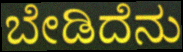
ಬೇಡಿದೆನು